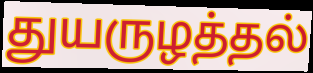
துயருழத்தல்